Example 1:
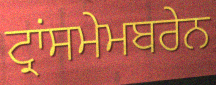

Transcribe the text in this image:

ਟ੍ਰਾਂਸਮੇਮਬਰੇਨ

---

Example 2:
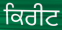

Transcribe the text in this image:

ਕਿਰੀਟ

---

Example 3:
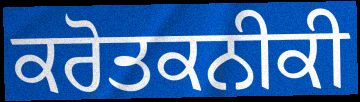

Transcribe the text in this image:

ਕਰੋਤਕਨੀਕੀ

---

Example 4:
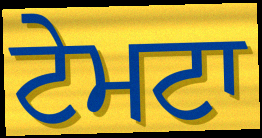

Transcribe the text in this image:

ਟੇਮਟਾ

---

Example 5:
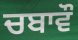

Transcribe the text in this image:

ਚਬਾਵੌ